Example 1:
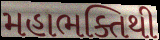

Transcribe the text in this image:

મહાભક્તિથી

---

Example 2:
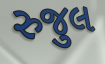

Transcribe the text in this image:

રુજુલ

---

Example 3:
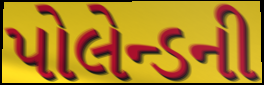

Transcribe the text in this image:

પોલેન્ડની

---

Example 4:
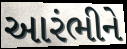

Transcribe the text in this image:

આરંભીને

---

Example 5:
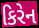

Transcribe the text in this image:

કિરેન